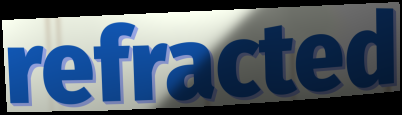
refracted